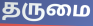
தருமை